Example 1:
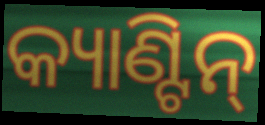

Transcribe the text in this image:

କ୍ୟାଣ୍ଟିନ୍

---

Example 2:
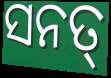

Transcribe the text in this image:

ସନତ୍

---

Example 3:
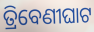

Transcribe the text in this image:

ତ୍ରିବେଣୀଘାଟ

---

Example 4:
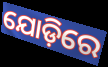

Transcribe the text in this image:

ଯୋଡ଼ିରେ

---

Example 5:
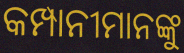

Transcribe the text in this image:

କମ୍ପାନୀମାନଙ୍କୁ